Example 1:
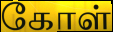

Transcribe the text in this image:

கோள்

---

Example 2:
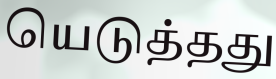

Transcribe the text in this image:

யெடுத்தது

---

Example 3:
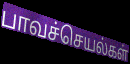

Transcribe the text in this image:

பாவச்செயல்கள்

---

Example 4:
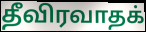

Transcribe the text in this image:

தீவிரவாதக்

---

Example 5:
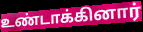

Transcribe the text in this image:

உண்டாக்கினார்